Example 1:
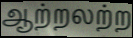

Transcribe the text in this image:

ஆற்றலற்ற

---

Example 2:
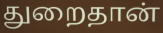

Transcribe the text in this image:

துறைதான்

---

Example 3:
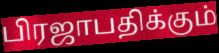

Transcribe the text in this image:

பிரஜாபதிக்கும்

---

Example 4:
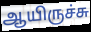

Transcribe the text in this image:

ஆயிருச்சு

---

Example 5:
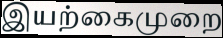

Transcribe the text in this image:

இயற்கைமுறை